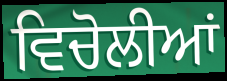
ਵਿਚੋਲੀਆਂ